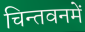
चिन्तवनमें